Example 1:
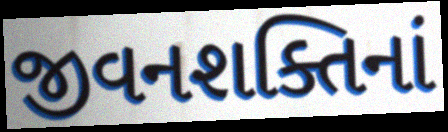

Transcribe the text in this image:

જીવનશક્તિનાં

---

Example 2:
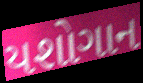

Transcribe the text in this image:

યશોગાન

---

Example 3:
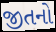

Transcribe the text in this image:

જીતનો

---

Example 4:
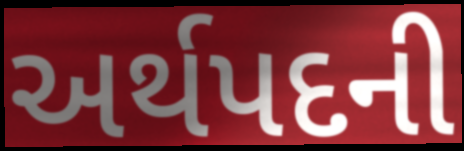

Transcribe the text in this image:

અર્થપદની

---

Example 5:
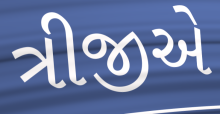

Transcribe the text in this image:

ત્રીજીએ